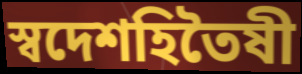
স্বদেশহিতৈষী